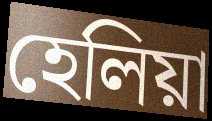
হেলিয়া